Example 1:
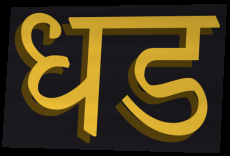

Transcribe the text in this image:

धड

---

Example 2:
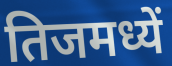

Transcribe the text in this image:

तिजमध्यें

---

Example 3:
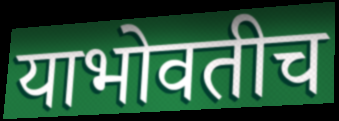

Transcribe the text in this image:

याभोवतीच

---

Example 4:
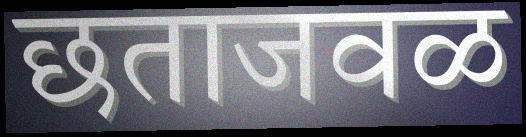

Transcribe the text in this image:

छताजवळ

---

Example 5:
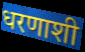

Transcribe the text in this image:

धरणाशी